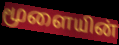
மூளையின்